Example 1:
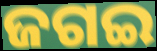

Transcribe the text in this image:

ଜଗଇ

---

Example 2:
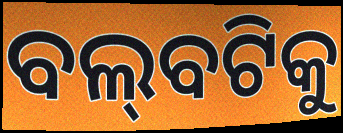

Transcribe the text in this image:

ବଲ୍‌ବଟିକୁ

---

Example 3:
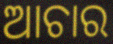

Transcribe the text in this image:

ଆଚାର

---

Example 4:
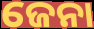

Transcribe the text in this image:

ଜେନା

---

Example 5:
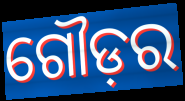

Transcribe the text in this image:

ଗୌଡ଼ର